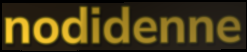
nodidenne